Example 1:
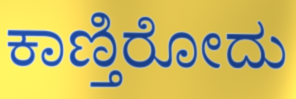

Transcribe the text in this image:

ಕಾಣ್ತಿರೋದು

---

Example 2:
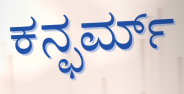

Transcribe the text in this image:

ಕನ್ಫರ್ಮ್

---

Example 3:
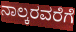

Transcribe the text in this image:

ನಾಲ್ಕರವರೆಗೆ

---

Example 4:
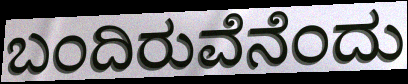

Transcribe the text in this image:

ಬಂದಿರುವೆನೆಂದು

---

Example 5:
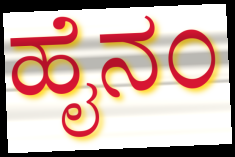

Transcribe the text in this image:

ಹೈನಂ